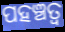
ପହଞ୍ଚତ୍ବ